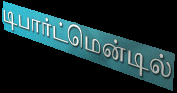
டிபார்ட்மென்டில்